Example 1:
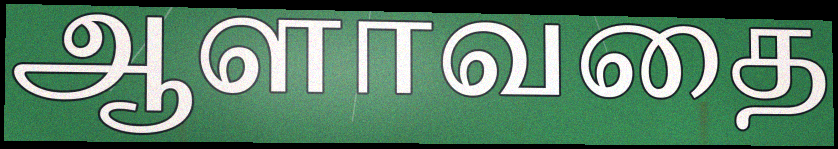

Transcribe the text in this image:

ஆளாவதை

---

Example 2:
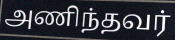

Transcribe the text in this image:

அணிந்தவர்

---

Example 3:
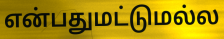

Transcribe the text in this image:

என்பதுமட்டுமல்ல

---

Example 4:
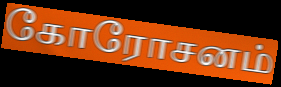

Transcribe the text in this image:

கோரோசனம்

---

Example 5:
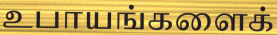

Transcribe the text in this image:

உபாயங்களைக்